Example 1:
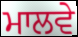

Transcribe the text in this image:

ਮਾਲਵੇ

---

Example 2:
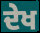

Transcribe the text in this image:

ਦੇਖ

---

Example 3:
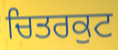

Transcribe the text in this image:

ਚਿਤਰਕੁਟ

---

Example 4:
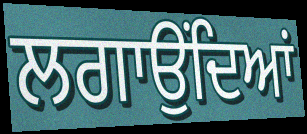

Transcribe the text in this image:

ਲਗਾਉਂਦਿਆਂ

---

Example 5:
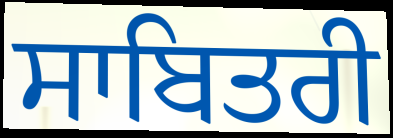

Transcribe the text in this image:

ਸਾਬਿਤਰੀ